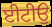
ਈਟੀਉ